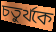
চতুর্থকে